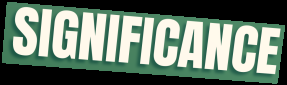
SIGNIFICANCE